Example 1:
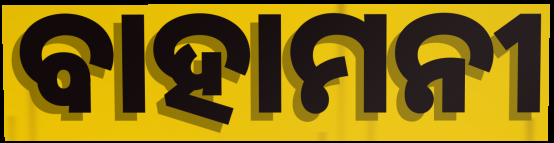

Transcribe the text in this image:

ବାହାମନୀ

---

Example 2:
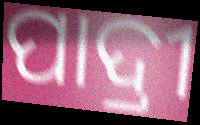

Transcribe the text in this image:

ପାଦ୍ରୀ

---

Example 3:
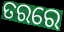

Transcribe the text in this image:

ତରରେ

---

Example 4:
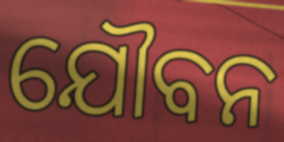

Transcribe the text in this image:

ଯୌବନ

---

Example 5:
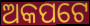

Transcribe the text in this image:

ଅକପଟେ